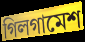
গিলগামেশ